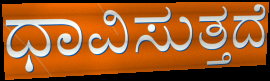
ಧಾವಿಸುತ್ತದೆ